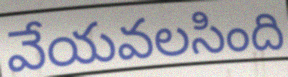
వేయవలసింది